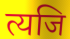
त्यजि